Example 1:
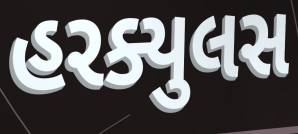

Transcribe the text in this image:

હરક્યુલસ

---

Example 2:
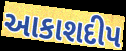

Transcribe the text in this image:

આકાશદીપ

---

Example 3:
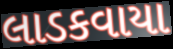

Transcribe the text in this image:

લાડકવાયા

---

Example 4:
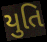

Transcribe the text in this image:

યુતિ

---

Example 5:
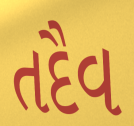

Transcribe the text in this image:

તદૈવ